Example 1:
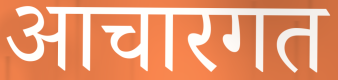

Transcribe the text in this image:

आचारगत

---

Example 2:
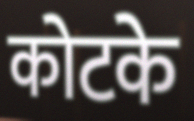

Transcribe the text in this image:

कोटके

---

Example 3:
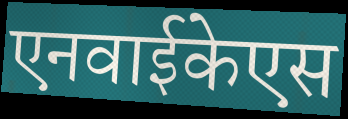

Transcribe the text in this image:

एनवाईकेएस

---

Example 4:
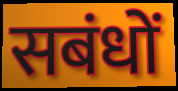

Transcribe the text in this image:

सबंधों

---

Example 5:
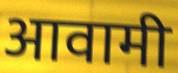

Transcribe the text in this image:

आवामी